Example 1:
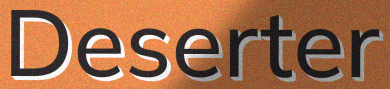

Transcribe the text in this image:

Deserter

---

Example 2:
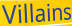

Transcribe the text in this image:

Villains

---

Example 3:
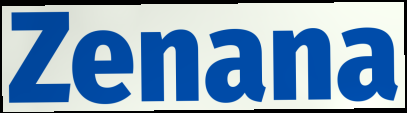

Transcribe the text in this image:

Zenana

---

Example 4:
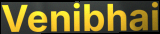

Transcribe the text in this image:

Venibhai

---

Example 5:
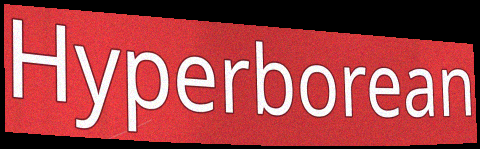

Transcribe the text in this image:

Hyperborean